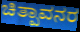
ಚಿತ್ಪಾವನರ